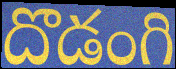
దొడంగి